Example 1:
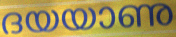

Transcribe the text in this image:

ദയയാണു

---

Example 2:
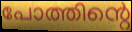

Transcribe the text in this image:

പോത്തിന്റെ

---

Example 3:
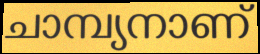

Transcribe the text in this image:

ചാമ്പ്യനാണ്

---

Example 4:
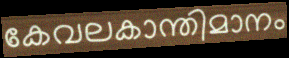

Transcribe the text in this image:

കേവലകാന്തിമാനം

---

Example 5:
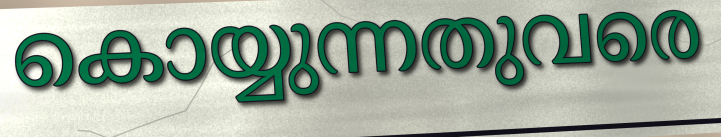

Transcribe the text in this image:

കൊയ്യുന്നതുവരെ